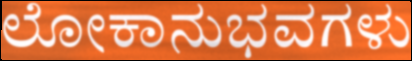
ಲೋಕಾನುಭವಗಳು